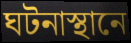
ঘটনাস্থানে